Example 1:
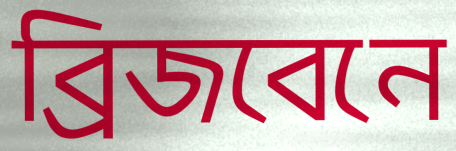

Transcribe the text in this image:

ব্রিজবেনে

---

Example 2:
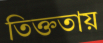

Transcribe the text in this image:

তিক্ততায়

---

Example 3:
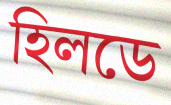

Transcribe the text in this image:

হিলডে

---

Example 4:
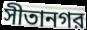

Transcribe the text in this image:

সীতানগর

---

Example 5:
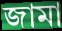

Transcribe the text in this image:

জামা